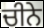
ਚੀਨੇ